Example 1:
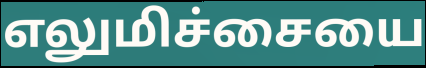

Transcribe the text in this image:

எலுமிச்சையை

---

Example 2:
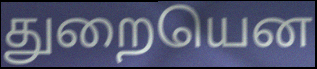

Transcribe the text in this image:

துறையென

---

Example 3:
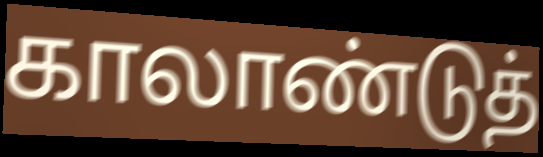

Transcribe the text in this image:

காலாண்டுத்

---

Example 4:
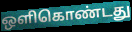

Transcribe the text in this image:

ஒளிகொண்டது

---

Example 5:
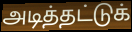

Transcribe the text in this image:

அடித்தட்டுக்